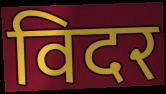
विदर